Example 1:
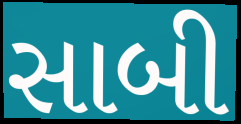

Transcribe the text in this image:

સાબી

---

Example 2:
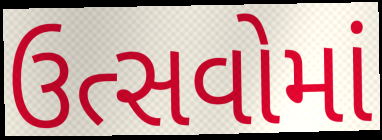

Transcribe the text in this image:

ઉત્સવોમાં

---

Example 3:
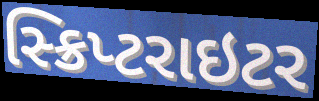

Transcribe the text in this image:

સ્ક્રિપ્ટરાઇટર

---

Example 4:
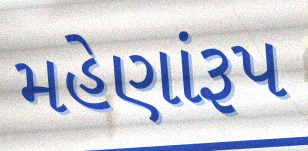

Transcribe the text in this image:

મહેણાંરૂપ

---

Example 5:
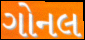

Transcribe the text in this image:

ગોનલ